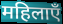
महिलाएँ